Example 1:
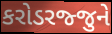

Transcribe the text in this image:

કરોડરજ્જુને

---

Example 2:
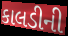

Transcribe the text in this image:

કાલડીની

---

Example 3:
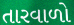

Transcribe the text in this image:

તારવાળો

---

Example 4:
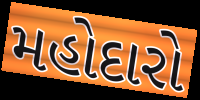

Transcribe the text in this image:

મહોદારો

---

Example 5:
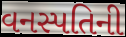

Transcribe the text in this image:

વનસ્પતિની